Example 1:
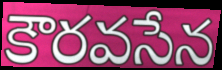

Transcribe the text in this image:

కౌరవసేన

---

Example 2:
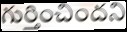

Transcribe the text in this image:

గుర్తించిందని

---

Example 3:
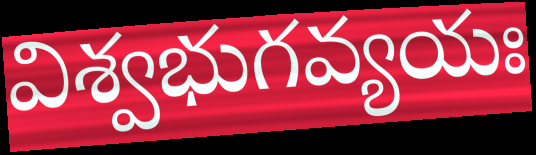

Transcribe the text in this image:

విశ్వభుగవ్యయః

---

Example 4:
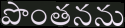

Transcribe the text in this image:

పొంతనను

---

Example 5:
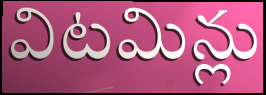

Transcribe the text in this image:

విటమిన్లు